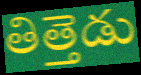
తిత్తెడు